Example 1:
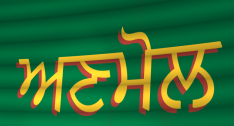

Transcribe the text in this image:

ਅਣਮੋਲ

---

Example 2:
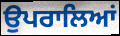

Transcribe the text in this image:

ਉਪਰਾਲਿਆਂ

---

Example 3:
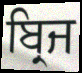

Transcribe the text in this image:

ਬ੍ਰਿਜ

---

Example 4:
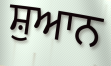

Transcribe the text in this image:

ਸ਼ੁਆਨ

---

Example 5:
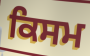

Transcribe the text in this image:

ਕਿਸਮ